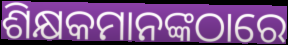
ଶିକ୍ଷକମାନଙ୍କଠାରେ